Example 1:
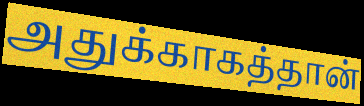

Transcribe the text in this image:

அதுக்காகத்தான்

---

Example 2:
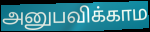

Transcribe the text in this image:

அனுபவிக்காம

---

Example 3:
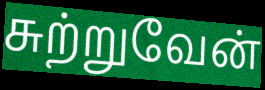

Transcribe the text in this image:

சுற்றுவேன்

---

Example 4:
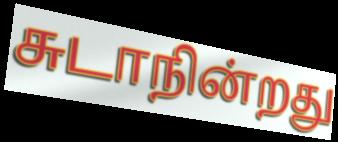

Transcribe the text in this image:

சுடாநின்றது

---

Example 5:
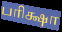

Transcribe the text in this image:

பரிக்ஷா